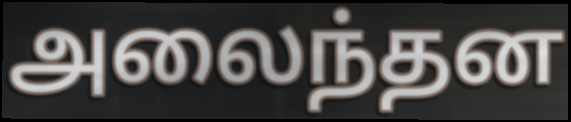
அலைந்தன